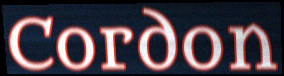
Cordon